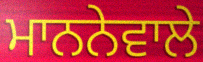
ਮਾਨਨੇਵਾਲੇ